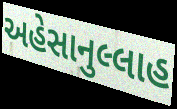
અહેસાનુલ્લાહ